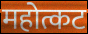
महोत्कट